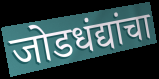
जोडधंद्यांचा